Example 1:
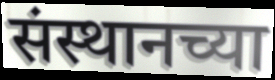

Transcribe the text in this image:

संस्थानच्या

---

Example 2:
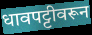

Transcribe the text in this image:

धावपट्टीवरून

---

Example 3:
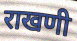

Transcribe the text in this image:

राखणी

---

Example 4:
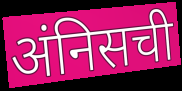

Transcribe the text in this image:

अंनिसची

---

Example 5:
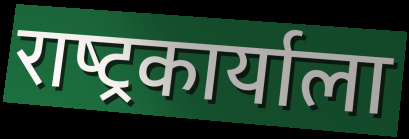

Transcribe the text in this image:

राष्ट्रकार्याला